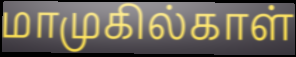
மாமுகில்காள்